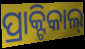
ପ୍ରାକ୍ଟିକାଲ୍